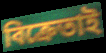
বিক্ৰেতাই